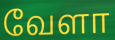
வேளா